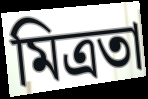
মিত্ৰতা